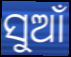
ସୁଆଁ